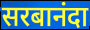
सरबानंदा